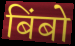
बिंबो